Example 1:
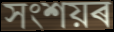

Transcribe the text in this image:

সংশয়ৰ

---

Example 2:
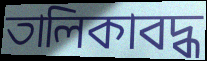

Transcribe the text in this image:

তালিকাবদ্ধ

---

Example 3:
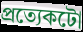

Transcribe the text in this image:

প্ৰত্যেকটো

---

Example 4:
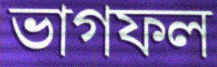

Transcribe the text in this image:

ভাগফল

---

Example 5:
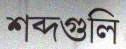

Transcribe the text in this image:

শব্দগুলি